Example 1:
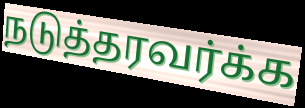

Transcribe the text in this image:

நடுத்தரவர்க்க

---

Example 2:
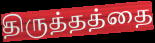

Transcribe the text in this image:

திருத்தத்தை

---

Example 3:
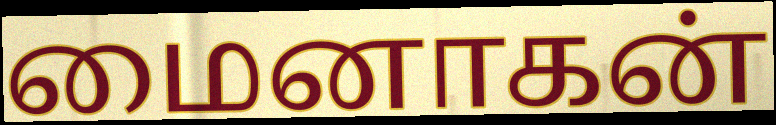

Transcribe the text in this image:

மைனாகன்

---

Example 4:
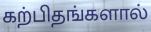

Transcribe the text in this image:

கற்பிதங்களால்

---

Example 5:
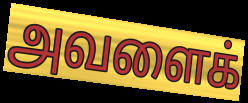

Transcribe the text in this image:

அவளைக்